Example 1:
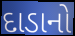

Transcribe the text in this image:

દાડાનો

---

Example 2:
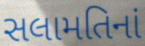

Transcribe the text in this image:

સલામતિનાં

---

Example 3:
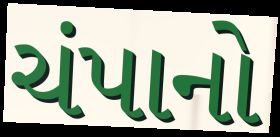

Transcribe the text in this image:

ચંપાનો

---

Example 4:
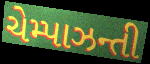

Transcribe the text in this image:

ચેમ્પાઝન્તી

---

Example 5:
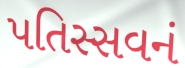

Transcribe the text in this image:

પતિસ્સવનં